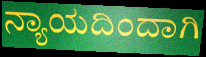
ನ್ಯಾಯದಿಂದಾಗಿ